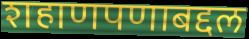
शहाणपणाबद्दल